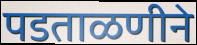
पडताळणीने